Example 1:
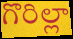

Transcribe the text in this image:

గొరిల్లా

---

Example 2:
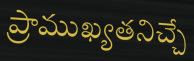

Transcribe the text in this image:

ప్రాముఖ్యతనిచ్చే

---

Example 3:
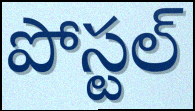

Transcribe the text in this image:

పోస్టల్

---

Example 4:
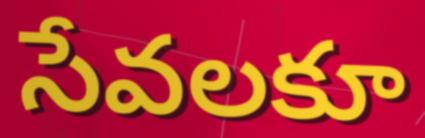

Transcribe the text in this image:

సేవలకూ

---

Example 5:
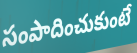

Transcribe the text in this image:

సంపాదించుకుంటే